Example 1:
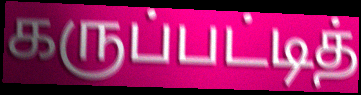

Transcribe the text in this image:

கருப்பட்டித்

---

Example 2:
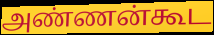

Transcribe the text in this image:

அண்ணன்கூட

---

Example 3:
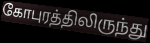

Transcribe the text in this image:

கோபுரத்திலிருந்து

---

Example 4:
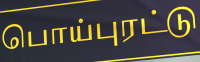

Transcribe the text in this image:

பொய்புரட்டு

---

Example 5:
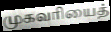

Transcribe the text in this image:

முகவரியைத்